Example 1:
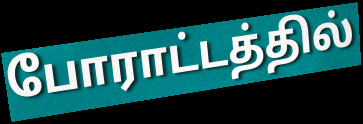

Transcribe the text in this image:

போராட்டத்தில்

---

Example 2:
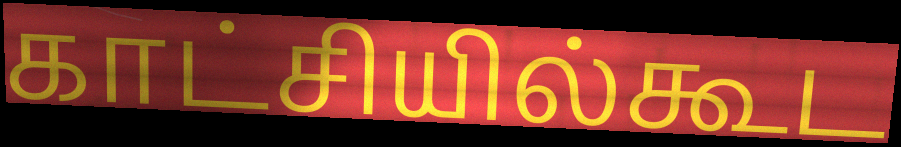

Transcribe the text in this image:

காட்சியில்கூட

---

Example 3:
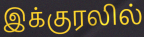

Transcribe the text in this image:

இக்குரலில்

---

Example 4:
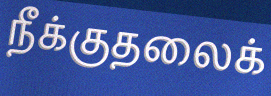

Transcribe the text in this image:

நீக்குதலைக்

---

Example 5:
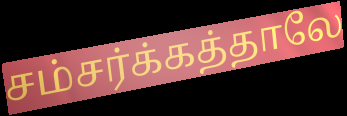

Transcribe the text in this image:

சம்சர்க்கத்தாலே